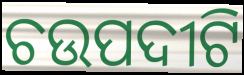
ଚଉପଦୀଟି